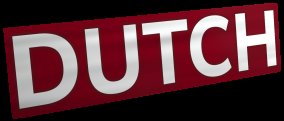
DUTCH